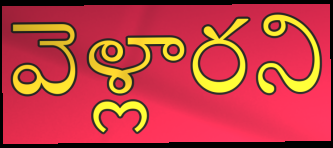
వెళ్లారని